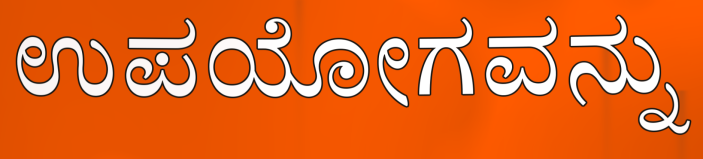
ಉಪಯೋಗವನ್ನು